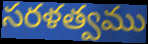
సరళత్వము